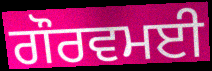
ਗੌਰਵਮਈ